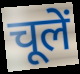
चूलें